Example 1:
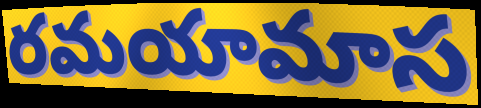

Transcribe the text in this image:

రమయామాస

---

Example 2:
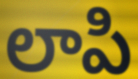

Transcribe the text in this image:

లాపి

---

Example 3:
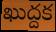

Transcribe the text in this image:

ఖుద్దక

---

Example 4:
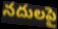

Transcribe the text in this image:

నదులపై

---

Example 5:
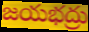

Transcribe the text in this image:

జయభద్రు